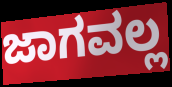
ಜಾಗವಲ್ಲ